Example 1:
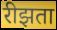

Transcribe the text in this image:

रीझता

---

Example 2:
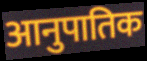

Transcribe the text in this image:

आनुपातिक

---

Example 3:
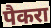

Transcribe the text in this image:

पैकरा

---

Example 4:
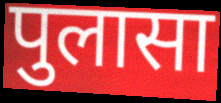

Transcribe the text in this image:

पुलासा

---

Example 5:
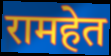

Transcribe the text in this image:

रामहेत